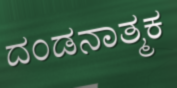
ದಂಡನಾತ್ಮಕ